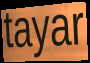
tayar